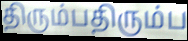
திரும்பதிரும்ப